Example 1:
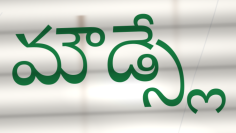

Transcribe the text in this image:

మౌడ్స్లే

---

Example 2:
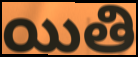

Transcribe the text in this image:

యితి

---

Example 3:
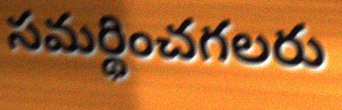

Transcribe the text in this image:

సమర్థించగలరు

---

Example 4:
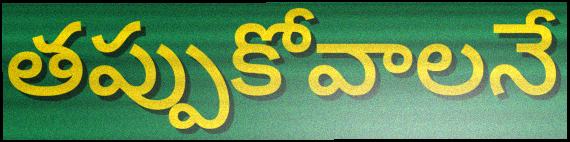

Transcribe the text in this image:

తప్పుకోవాలనే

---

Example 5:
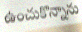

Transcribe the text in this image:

ఉంచుకొన్నాను